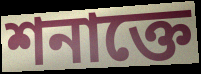
শনাক্তে